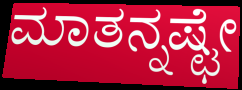
ಮಾತನ್ನಷ್ಟೇ